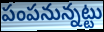
పంపనున్నట్టు